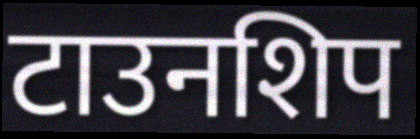
टाउनशिप